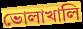
ভোলাখালি